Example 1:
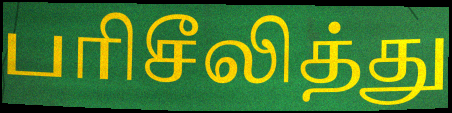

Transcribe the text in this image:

பரிசீலித்து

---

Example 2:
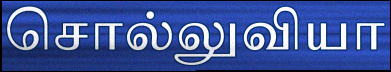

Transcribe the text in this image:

சொல்லுவியா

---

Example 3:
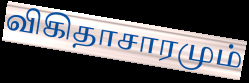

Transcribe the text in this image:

விகிதாசாரமும்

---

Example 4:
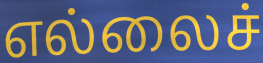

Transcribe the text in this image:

எல்லைச்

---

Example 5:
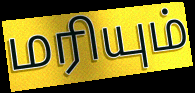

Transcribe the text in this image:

மரியும்